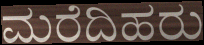
ಮರೆದಿಹರು